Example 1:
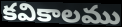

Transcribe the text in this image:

కవికాలము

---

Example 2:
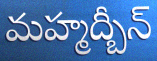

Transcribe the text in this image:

మహ్మద్బీన్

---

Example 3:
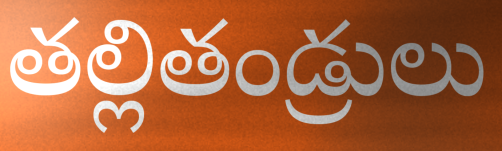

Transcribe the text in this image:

తల్లితండ్రులు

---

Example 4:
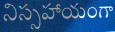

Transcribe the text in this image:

నిస్సహాయంగా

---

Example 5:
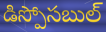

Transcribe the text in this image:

డిస్పోసబుల్